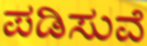
ಪಡಿಸುವೆ